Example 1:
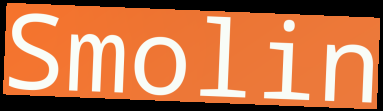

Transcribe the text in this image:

Smolin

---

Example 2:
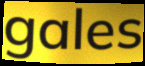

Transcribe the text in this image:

gales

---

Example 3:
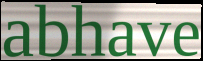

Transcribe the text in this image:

abhave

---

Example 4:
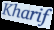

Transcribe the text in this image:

Kharif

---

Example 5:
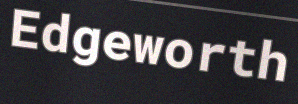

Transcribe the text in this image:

Edgeworth